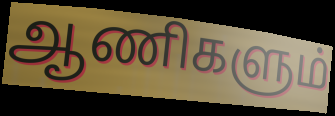
ஆணிகளும்